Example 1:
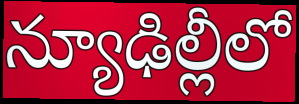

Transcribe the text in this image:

న్యూఢిల్లీలో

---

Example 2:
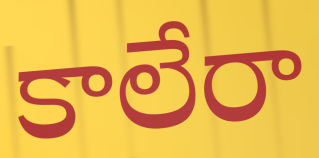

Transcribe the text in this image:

కాలేరా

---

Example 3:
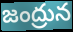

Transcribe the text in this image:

జంద్రున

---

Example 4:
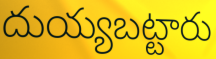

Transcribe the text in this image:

దుయ్యబట్టారు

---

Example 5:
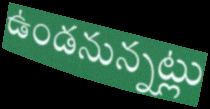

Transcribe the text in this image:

ఉండనున్నట్లు